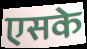
एसके